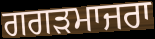
ਗਗੜਮਾਜਰਾ